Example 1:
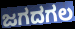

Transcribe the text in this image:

ಜಗದಗಲ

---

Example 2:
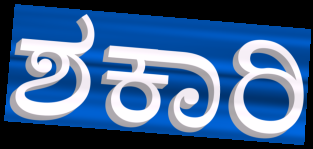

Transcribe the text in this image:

ಶಕಾರಿ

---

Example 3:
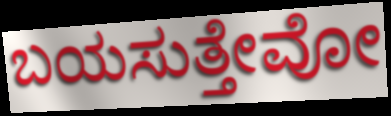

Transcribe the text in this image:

ಬಯಸುತ್ತೇವೋ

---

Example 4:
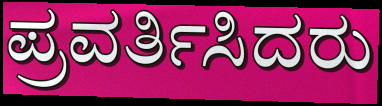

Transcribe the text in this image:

ಪ್ರವರ್ತಿಸಿದರು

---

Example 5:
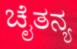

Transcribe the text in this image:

ಚೈತನ್ಯ